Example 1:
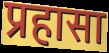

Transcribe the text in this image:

प्रहासा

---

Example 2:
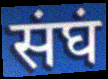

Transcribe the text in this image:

संघं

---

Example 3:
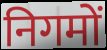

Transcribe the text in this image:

निगमों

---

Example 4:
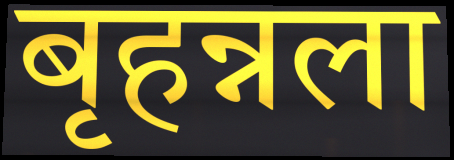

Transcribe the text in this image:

बृहन्नला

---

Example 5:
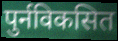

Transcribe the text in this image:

पुर्नविकसित